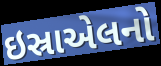
ઇસ્રાએલનો